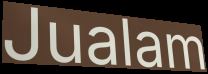
Jualam